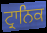
ਟ੍ਰਾਨਿਕ